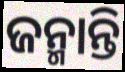
ଜନ୍ମାନ୍ତି